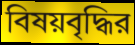
বিষয়বৃদ্ধির